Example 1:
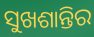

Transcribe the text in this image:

ସୁଖଶାନ୍ତିର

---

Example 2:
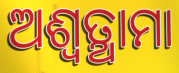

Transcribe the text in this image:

ଅଶ୍ଵତ୍ଥାମା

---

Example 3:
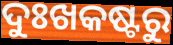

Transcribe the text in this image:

ଦୁଃଖକଷ୍ଟରୁ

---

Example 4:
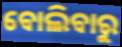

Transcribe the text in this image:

ବୋଲିବାରୁ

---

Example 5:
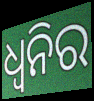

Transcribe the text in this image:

ଧ୍ବନିର